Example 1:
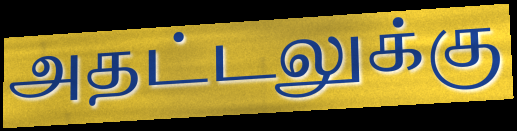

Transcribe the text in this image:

அதட்டலுக்கு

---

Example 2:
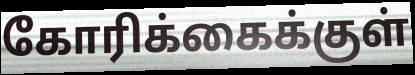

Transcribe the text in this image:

கோரிக்கைக்குள்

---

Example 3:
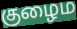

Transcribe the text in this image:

குழைம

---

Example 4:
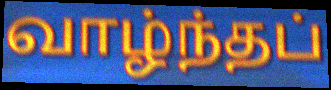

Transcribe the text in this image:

வாழ்ந்தப்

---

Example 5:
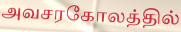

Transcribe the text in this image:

அவசரகோலத்தில்